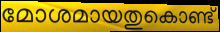
മോശമായതുകൊണ്ട്